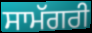
ਸਾਮੱਗਰੀ